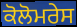
ਕੋਲੋਮਰੇਸ